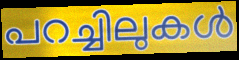
പറച്ചിലുകൾ